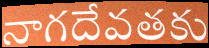
నాగదేవతకు